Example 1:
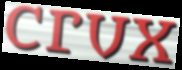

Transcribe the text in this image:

crux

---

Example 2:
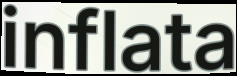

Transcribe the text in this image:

inflata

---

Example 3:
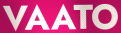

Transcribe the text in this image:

VAATO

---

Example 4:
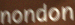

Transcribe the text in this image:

nondon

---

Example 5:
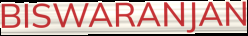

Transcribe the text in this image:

BISWARANJAN